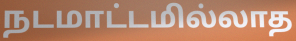
நடமாட்டமில்லாத